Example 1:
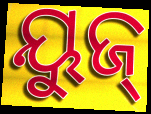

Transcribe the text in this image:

ୟୁଜ୍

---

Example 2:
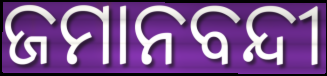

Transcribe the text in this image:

ଜମାନବନ୍ଦୀ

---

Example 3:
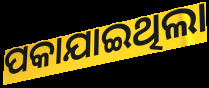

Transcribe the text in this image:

ପକାଯାଇଥିଲା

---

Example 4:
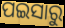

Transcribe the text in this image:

ପଇସାରୁ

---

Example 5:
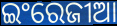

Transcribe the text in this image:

ଇଂରେଜୀଆ